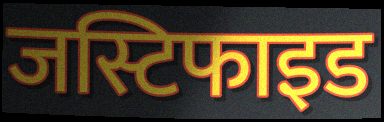
जस्टिफाइड